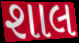
શાલ